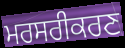
ਮਰਸਰੀਕਰਣ